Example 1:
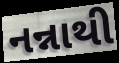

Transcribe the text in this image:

નન્નાથી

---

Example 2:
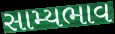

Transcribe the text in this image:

સામ્યભાવ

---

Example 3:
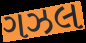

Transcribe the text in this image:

ગઝલ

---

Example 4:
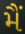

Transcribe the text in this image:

મૈં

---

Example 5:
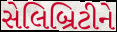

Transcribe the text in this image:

સેલિબ્રિટીને